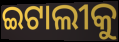
ଇଟାଲୀକୁ